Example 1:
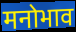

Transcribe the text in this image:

मनोभाव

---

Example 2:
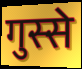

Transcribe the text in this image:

गुस्‍से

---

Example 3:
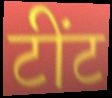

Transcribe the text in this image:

टींट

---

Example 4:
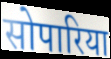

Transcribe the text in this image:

सोपारिया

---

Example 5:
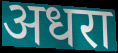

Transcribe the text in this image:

अधरा